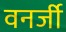
वनर्जी